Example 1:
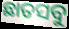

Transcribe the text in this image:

ଛାତସବୁ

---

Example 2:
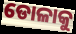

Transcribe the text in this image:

ଡୋଳାକୁ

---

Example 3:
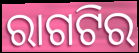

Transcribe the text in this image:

ରାଗଟିର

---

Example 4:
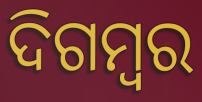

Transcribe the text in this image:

ଦିଗମ୍ବର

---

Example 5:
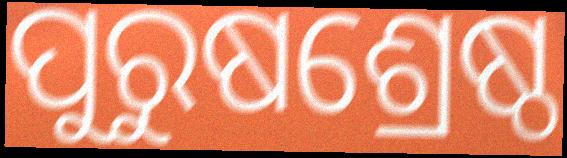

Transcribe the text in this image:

ପୁରୁଷଶ୍ରେଷ୍ଠ